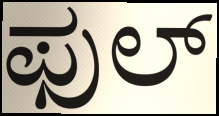
ಫುಲ್